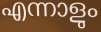
എന്നാളും